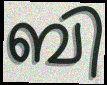
ബി